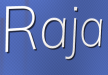
Raja